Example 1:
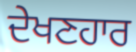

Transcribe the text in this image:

ਦੇਖਣਹਾਰ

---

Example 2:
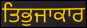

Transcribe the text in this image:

ਤਿਭੁਜਾਕਾਰ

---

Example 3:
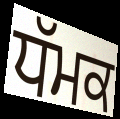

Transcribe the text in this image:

ਧੱਮਕ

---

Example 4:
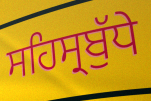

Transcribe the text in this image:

ਸਹਿਸ੍ਰਬੁੱਧੇ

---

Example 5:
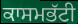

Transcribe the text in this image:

ਕਾਸਮਭੱਟੀ